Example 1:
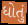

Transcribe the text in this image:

ધોતું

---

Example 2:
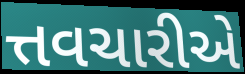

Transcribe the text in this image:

ત્તવચારીએ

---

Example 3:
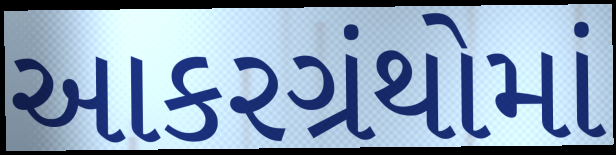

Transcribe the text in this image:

આકરગ્રંથોમાં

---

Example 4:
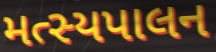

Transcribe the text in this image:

મત્સ્યપાલન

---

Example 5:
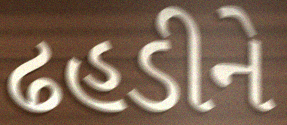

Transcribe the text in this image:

ઢહડીને